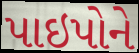
પાઇપોને